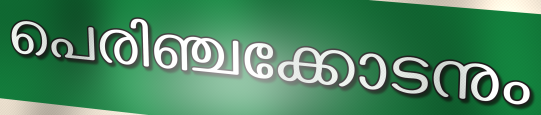
പെരിഞ്ചക്കോടനും